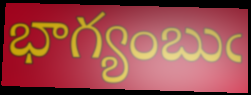
భాగ్యంబుఁ